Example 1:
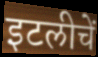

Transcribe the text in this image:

इटलीचें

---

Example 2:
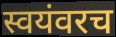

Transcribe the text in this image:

स्वयंवरच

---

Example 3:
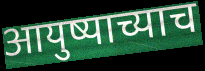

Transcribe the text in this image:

आयुष्याच्याच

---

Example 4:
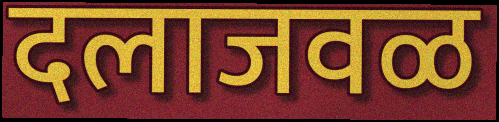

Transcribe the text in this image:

दलाजवळ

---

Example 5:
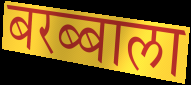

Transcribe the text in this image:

बरब्बाला